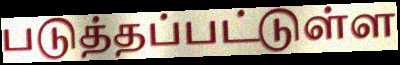
படுத்தப்பட்டுள்ள